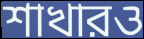
শাখারও